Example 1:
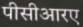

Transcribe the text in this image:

पीसीआरए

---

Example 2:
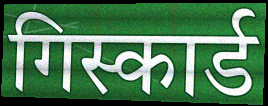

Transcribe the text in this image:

गिस्कार्ड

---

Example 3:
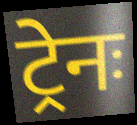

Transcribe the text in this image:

ट्रेनः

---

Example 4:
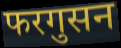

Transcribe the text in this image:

फरगुसन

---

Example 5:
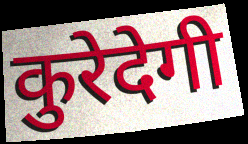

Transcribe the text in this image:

कुरेदेगी